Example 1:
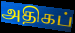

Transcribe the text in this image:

அதிகப்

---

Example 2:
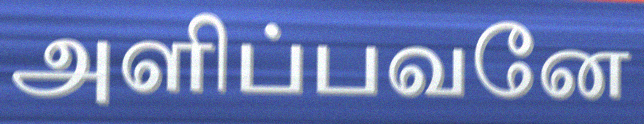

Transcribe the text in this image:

அளிப்பவனே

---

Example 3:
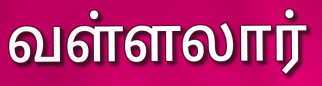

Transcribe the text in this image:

வள்ளலார்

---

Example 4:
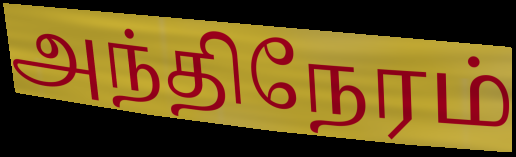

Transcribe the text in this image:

அந்திநேரம்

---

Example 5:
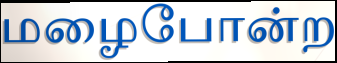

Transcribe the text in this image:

மழைபோன்ற